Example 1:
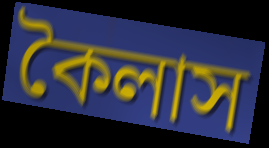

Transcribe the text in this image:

কৈলাস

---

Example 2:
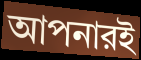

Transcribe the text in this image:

আপনারই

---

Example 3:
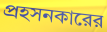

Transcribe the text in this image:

প্রহসনকারের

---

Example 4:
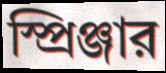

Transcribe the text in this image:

স্প্রিঞ্জার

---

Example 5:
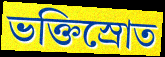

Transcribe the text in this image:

ভক্তিস্রোত